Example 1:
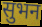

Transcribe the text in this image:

सुभन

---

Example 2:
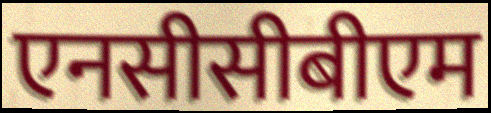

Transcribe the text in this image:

एनसीसीबीएम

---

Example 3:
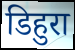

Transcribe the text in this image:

डिहुरा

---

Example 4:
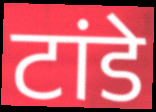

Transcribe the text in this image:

टांडे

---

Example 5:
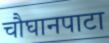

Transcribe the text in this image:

चौघानपाटा